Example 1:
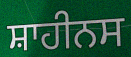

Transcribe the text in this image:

ਸ਼ਾਹੀਨਸ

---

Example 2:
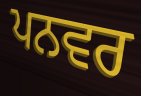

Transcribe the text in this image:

ਪਨਵਰ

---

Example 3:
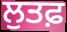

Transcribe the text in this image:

ਲੁਤਫ਼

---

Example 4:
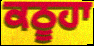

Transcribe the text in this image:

ਕਠੂਹਾ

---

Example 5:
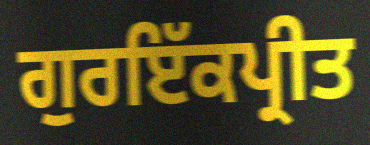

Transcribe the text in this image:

ਗੁਰਇੱਕਪ੍ਰੀਤ